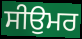
ਸੀਉਮਰ